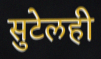
सुटेलही